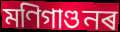
মণিগাণ্ডনৰ